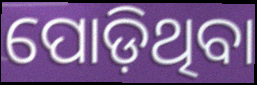
ପୋଡ଼ିଥିବା